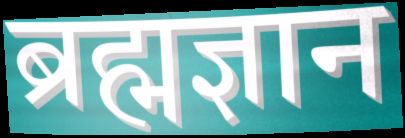
ब्रह्मज्ञान